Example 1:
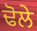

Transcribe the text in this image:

ਢੋਲੇ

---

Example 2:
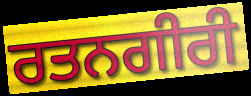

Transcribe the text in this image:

ਰਤਨਗੀਰੀ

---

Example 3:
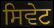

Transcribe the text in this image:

ਸਿਵੇਟ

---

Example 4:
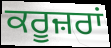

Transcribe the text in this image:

ਕਰੂਜ਼ਰਾਂ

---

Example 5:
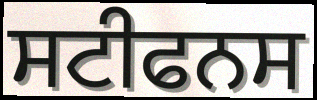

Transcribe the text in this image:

ਸਟੀਫਨਸ